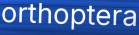
orthoptera